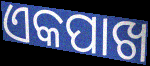
ଏକପାଖ